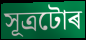
সূত্ৰটোৰ